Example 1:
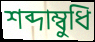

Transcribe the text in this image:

শব্দাম্বুধি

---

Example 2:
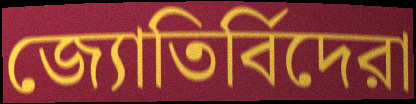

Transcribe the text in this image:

জ্যোতির্বিদেরা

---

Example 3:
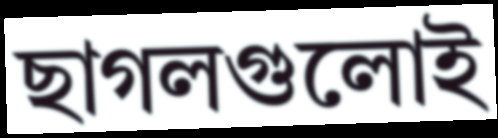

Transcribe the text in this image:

ছাগলগুলোই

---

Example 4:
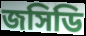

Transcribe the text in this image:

জসিডি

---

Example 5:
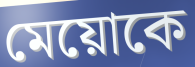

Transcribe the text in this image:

মেয়োকে